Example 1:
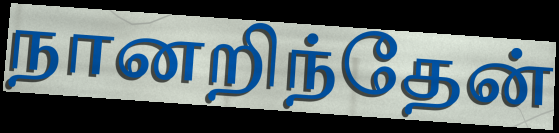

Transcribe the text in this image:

நானறிந்தேன்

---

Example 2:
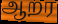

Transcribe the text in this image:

ஆறர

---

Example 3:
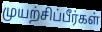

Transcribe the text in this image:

முயற்சிப்பீர்கள்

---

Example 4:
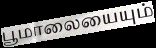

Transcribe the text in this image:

பூமாலையையும்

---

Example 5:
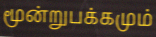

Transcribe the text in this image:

மூன்றுபக்கமும்